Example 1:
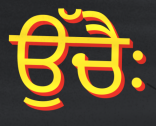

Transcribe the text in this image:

ਉੱਚੈਃ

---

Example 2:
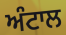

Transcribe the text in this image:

ਅੰਟਾਲ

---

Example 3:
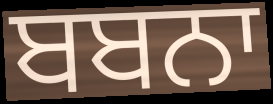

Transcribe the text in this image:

ਬਬਨਾ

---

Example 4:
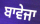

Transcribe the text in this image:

ਬਾਵੇਜਾ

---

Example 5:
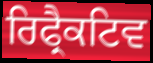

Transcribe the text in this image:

ਰਿਫ੍ਰੈਕਟਿਵ